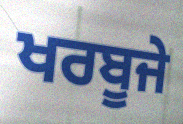
ਖਰਬੂਜੇ